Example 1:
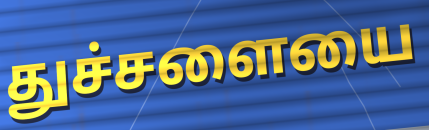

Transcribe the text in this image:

துச்சளையை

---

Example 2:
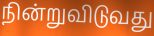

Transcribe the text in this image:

நின்றுவிடுவது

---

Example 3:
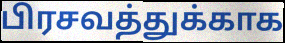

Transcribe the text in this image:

பிரசவத்துக்காக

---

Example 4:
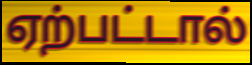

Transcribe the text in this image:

ஏற்பட்டால்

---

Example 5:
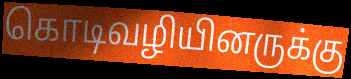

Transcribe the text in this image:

கொடிவழியினருக்கு